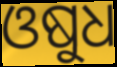
ଓଷୁଧ